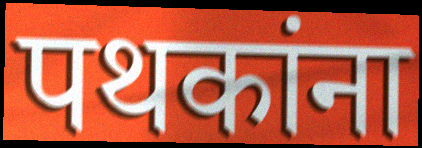
पथकांना